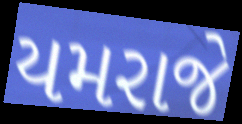
યમરાજે